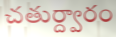
చతుర్ద్వారం